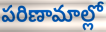
పరిణామాల్లో